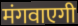
मंगवाएगी